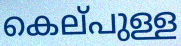
കെല്‌പുള്ള